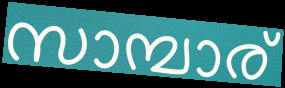
സാമ്പാര്